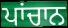
ਪਾਂਚਾਨ